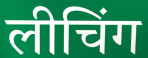
लीचिंग